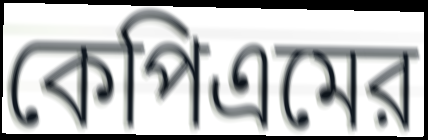
কেপিএমের